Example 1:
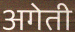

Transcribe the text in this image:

अगेती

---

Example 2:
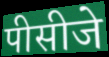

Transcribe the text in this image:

पीसीजे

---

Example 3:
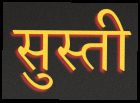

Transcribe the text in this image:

सुस्ती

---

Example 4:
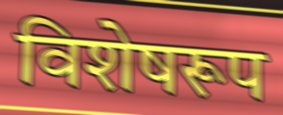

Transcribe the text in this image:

विशेषरूप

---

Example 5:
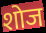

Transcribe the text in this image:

शोज